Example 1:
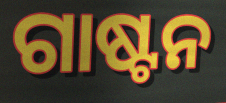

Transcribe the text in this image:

ଗାଷ୍ଟନ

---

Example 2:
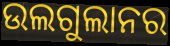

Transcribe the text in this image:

ଉଲଗୁଲାନର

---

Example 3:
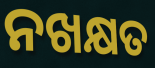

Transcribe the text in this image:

ନଖକ୍ଷତ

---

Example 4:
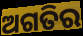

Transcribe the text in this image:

ଅଗତିର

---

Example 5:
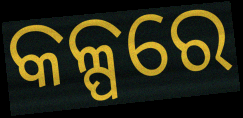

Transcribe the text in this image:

କଳ୍ପରେ